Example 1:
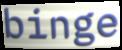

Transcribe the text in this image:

binge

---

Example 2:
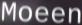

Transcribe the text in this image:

Moeen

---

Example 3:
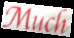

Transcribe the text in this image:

Much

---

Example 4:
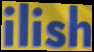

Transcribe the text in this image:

ilish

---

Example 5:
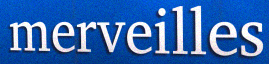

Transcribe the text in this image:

merveilles